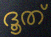
ദൂത്